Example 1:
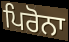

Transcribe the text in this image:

ਪਿਰੋਨਾ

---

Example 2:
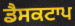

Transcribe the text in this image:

ਡੈਸਕਟਾਪ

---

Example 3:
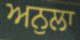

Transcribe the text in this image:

ਅਨੁਲਾ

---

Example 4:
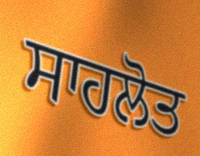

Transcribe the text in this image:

ਸਾਹਲੋਤ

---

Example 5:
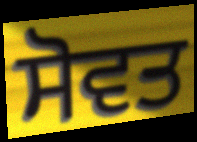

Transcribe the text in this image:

ਸੋਵਤ